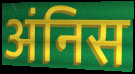
अंनिस